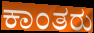
ಕಾಂತರು